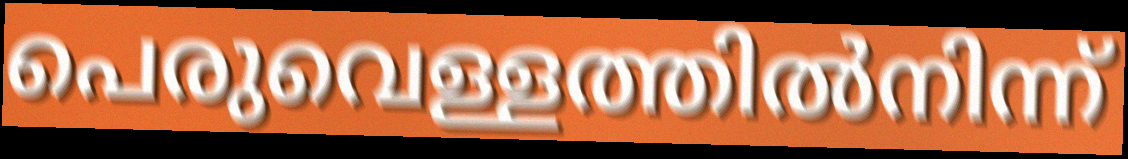
പെരുവെള്ളത്തിൽനിന്ന്